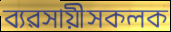
ব্যৱসায়ীসকলক